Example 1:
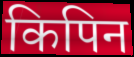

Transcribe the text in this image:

किपिन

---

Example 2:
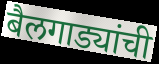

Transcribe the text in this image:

बैलगाड्यांची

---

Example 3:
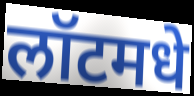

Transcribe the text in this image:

लॉटमधे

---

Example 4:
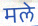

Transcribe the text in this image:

मले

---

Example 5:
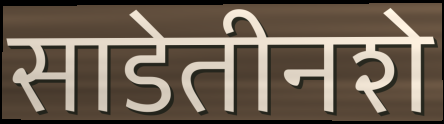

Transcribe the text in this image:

साडेतीनशे